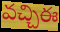
వచ్చిఈ